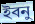
ইবনু